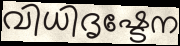
വിധിദൃഷ്ടേന